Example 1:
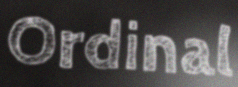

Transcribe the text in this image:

Ordinal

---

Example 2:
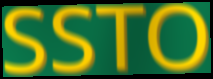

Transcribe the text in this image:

SSTO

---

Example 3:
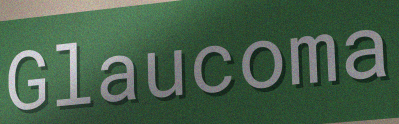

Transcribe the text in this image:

Glaucoma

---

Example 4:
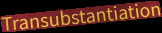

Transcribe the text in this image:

Transubstantiation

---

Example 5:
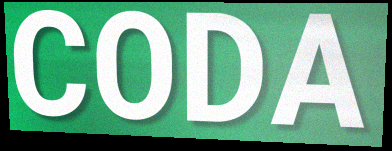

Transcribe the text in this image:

CODA